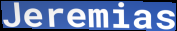
Jeremias